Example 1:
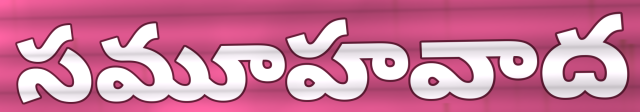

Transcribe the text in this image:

సమూహవాద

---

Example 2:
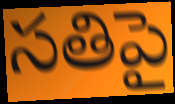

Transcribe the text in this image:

సతిపై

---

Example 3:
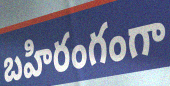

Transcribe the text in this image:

బహిరంగంగా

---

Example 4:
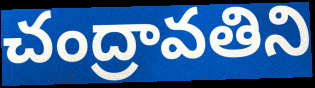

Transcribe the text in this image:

చంద్రావతిని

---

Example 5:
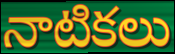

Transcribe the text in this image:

నాటికలు